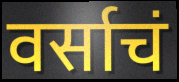
वर्साचं